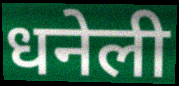
धनेली